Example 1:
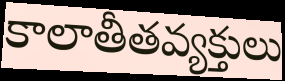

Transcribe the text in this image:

కాలాతీతవ్యక్తులు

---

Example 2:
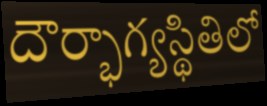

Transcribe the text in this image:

దౌర్భాగ్యస్థితిలో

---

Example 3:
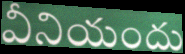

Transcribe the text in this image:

వీనియందు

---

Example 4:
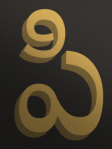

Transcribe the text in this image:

పి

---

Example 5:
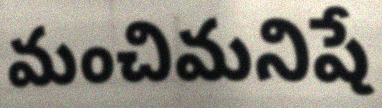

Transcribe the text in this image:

మంచిమనిషే